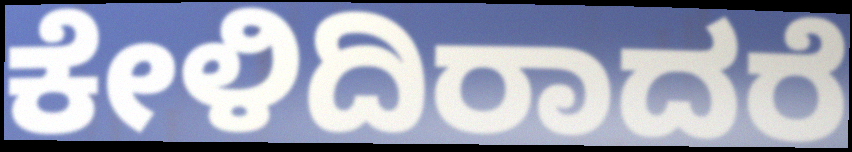
ಕೇಳಿದಿರಾದರೆ